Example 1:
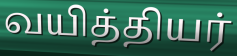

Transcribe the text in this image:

வயித்தியர்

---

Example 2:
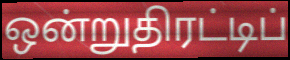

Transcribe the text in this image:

ஒன்றுதிரட்டிப்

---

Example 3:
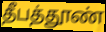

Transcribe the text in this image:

தீபத்தூண்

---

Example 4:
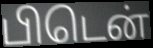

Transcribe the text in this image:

பிடென்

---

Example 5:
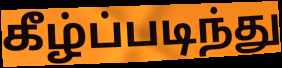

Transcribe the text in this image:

கீழ்ப்படிந்து